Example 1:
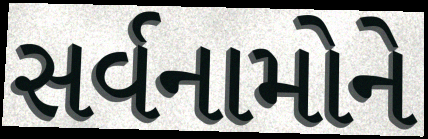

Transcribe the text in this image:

સર્વનામોને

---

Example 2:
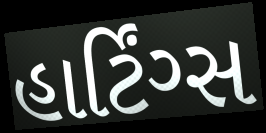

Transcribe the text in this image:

હાર્ટિંગ્સ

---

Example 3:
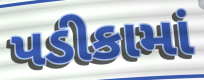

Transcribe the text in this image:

પડીકામાં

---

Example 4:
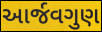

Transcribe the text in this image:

આર્જવગુણ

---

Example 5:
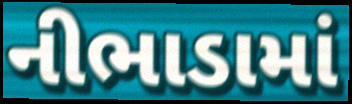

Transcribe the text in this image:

નીભાડામાં